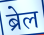
ब्रेल